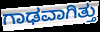
ಗಾಢವಾಗಿತ್ತು